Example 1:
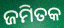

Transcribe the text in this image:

ଜମିତକ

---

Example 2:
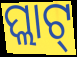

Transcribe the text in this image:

ପ୍ଲାଟ୍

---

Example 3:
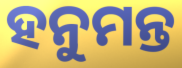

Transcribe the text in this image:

ହନୁମନ୍ତ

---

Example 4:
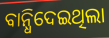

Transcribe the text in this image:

ବାନ୍ଧିଦେଇଥିଲା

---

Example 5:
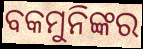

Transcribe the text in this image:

ବକମୁନିଙ୍କର